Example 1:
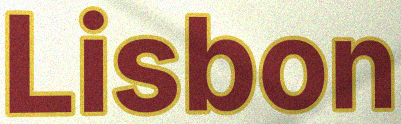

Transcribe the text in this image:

Lisbon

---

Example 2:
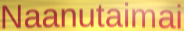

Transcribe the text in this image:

Naanutaimai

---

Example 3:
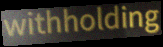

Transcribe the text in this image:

withholding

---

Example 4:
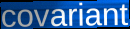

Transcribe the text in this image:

covariant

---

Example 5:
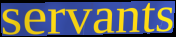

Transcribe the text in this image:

servants